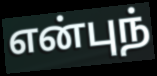
என்புந்